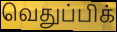
வெதுப்பிக்